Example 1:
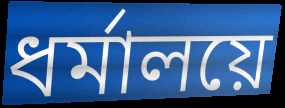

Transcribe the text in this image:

ধর্মালয়ে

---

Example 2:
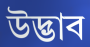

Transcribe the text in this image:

উদ্ভাব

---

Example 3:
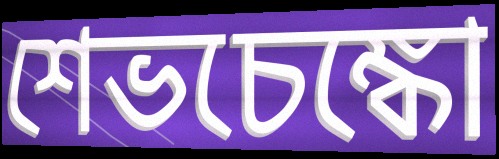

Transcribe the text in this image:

শেভচেঙ্কো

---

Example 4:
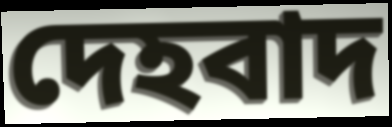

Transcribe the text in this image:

দেহবাদ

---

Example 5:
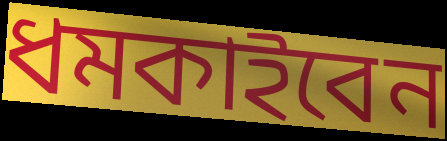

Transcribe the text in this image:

ধমকাইবেন